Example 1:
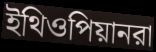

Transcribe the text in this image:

ইথিওপিয়ানরা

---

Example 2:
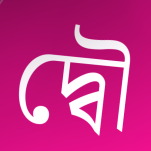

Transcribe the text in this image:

দ্বৌ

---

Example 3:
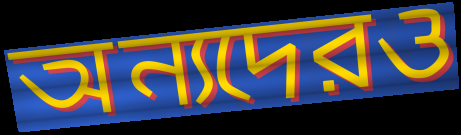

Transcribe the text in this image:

অন্যদেরও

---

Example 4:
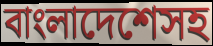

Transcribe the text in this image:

বাংলাদেশেসহ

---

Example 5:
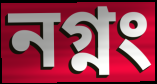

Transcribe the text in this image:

নগ্নং